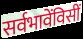
सर्वभावेंविसीं